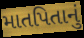
માતપિતાનું